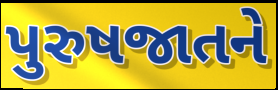
પુરુષજાતને